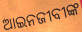
ଆଇନଜୀବୀଙ୍କ